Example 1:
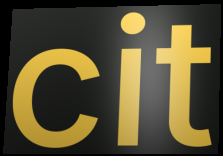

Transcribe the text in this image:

cit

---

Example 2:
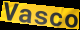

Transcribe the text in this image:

Vasco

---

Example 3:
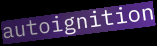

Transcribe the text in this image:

autoignition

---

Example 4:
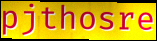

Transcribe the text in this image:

pjthosre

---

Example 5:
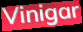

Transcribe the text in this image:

Vinigar